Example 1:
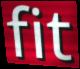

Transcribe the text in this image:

fit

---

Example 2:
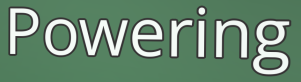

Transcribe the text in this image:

Powering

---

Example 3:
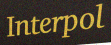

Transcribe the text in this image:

Interpol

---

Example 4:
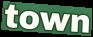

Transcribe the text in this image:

town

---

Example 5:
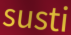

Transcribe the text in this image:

susti